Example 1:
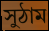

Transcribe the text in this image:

সুঠাম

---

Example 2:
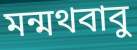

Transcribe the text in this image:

মন্মথবাবু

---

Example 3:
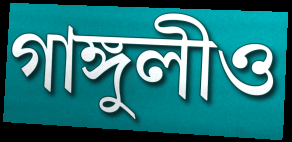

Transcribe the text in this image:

গাঙ্গুলীও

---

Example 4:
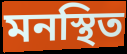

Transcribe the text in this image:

মনস্থিত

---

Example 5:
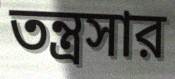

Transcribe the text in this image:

তন্ত্রসার